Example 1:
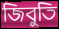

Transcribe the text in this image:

জিবুতি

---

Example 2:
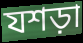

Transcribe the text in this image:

যশড়া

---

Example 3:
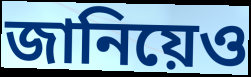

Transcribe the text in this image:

জানিয়েও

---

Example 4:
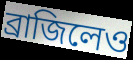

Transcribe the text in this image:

ব্রাজিলেও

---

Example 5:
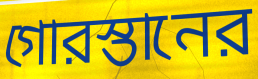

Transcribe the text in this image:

গোরস্তানের